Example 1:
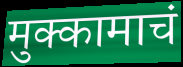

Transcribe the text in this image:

मुक्कामाचं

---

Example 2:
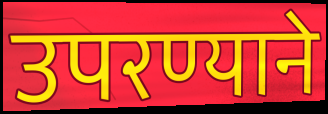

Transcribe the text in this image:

उपरण्याने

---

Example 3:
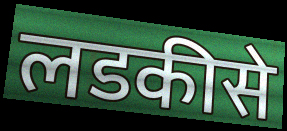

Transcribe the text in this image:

लडकीसे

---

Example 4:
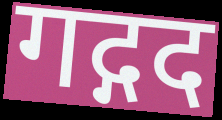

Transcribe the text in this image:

गद्गद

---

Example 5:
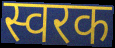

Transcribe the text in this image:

स्वरक